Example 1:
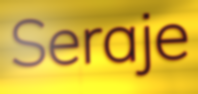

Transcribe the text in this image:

Seraje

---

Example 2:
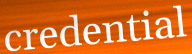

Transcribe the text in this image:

credential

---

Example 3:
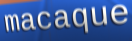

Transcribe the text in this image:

macaque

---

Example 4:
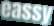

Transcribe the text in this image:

eassy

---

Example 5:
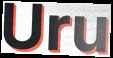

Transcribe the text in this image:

Uru